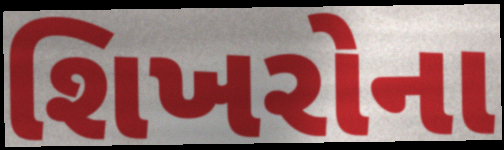
શિખરોના